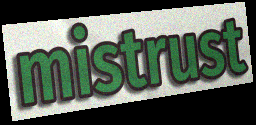
mistrust